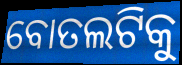
ବୋତଲଟିକୁ